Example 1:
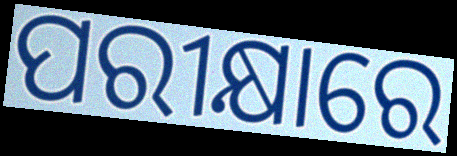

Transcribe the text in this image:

ପରୀକ୍ଷାରେ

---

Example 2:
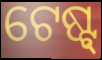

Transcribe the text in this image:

ଟେଷ୍ଟ୍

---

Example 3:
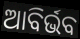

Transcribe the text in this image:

ଆବିର୍ଭବ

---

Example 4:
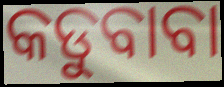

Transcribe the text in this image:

କଡୁବାବା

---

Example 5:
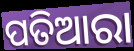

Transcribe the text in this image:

ପତିଆରା